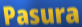
Pasura